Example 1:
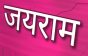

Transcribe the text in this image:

जयराम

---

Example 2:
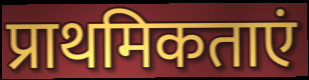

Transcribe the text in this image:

प्राथमिकताएं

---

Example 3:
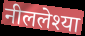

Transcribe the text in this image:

नीललेश्या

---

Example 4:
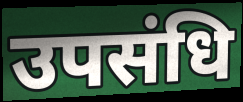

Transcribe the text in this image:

उपसंधि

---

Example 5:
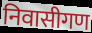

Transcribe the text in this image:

निवासीगण